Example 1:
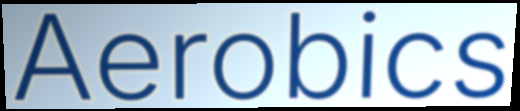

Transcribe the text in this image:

Aerobics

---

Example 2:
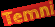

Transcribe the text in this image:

Temni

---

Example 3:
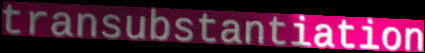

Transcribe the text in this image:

transubstantiation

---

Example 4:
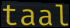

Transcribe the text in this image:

taal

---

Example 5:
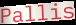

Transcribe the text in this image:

Pallis